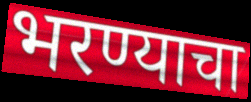
भरण्याचा